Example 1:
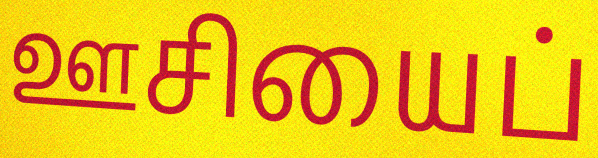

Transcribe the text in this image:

ஊசியைப்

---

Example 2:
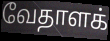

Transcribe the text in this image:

வேதாளக்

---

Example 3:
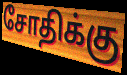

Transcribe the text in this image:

சோதிக்கு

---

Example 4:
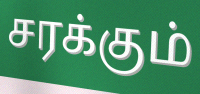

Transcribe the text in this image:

சரக்கும்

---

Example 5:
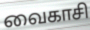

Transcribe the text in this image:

வைகாசி